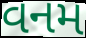
વનમ